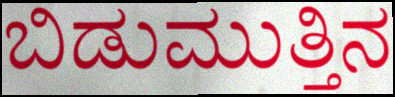
ಬಿಡುಮುತ್ತಿನ